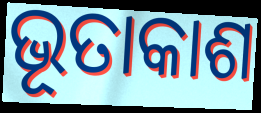
ଭୂତାକାଶ